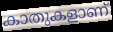
കാതുകളാണ്